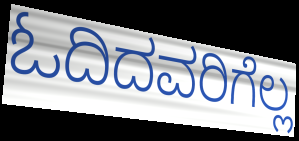
ಓದಿದವರಿಗೆಲ್ಲ